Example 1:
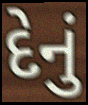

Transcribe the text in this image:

દેનું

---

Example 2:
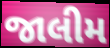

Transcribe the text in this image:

જાલીમ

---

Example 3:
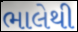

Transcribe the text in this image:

ભાલેથી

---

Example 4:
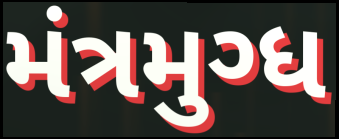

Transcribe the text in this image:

મંત્રમુગ્ધ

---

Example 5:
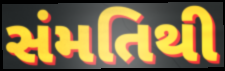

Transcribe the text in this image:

સંમતિથી